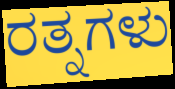
ರತ್ನಗಳು